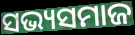
ସଭ୍ୟସମାଜ